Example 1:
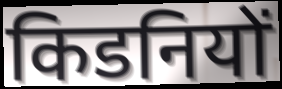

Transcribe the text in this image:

किडनियों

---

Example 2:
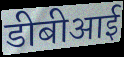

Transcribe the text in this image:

डीबीआई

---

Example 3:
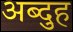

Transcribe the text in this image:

अब्दुह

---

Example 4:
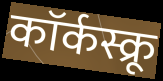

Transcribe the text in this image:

कॉर्कस्क्रू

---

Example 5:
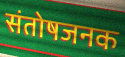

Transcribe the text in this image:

संतोषजनक